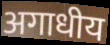
अगाधीय